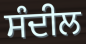
ਸੰਦੀਲ